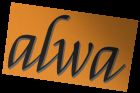
alwa